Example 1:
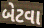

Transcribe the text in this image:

બેટવા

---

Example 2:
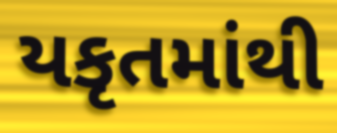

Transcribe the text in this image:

યકૃતમાંથી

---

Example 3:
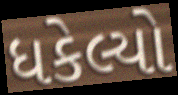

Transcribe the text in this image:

ધકેલ્યો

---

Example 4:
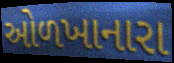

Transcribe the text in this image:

ઓળખાનારા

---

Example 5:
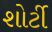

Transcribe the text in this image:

શોર્ટી